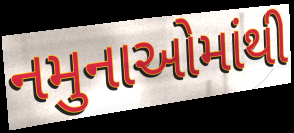
નમુનાઓમાંથી